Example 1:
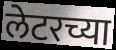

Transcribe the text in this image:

लेटरच्या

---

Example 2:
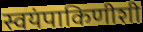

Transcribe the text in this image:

स्वयंपाकिणीशी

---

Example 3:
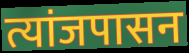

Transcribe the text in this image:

त्यांजपासन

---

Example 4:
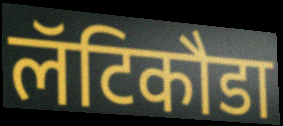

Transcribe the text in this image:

लॅटिकौडा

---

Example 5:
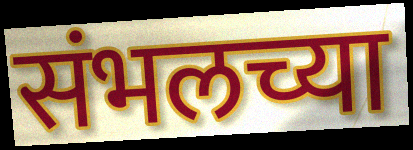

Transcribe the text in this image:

संभलच्या